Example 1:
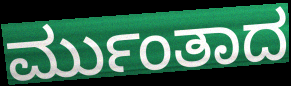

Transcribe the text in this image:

ರ್ಮುಂತಾದ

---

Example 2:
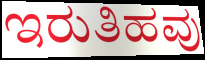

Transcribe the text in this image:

ಇರುತಿಹವು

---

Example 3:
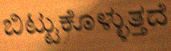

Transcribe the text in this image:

ಬಿಟ್ಟುಕೊಳ್ಳುತ್ತದೆ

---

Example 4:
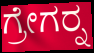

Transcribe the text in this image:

ಗ್ರೇಗರ್‍ನ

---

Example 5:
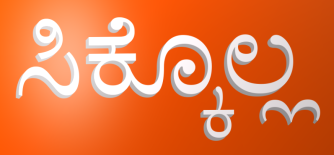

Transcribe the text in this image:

ಸಿಕ್ಕೊಲ್ಲ